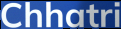
Chhatri